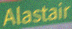
Alastair